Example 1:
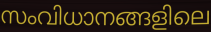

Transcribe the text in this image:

സംവിധാനങ്ങളിലെ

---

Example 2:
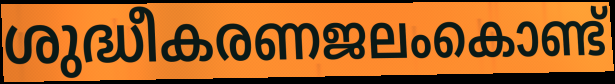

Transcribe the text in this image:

ശുദ്ധീകരണജലംകൊണ്ട്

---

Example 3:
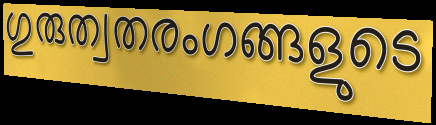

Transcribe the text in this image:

ഗുരുത്വതരംഗങ്ങളുടെ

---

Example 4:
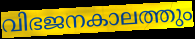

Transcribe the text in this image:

വിഭജനകാലത്തും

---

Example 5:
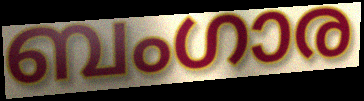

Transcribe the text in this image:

ബംഗാര